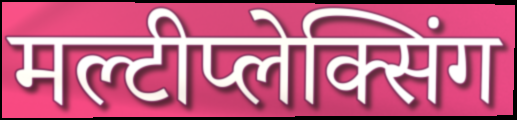
मल्टीप्लेक्सिंग